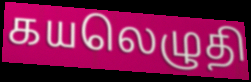
கயலெழுதி